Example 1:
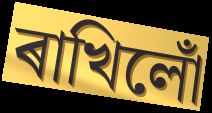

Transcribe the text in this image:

ৰাখিলোঁ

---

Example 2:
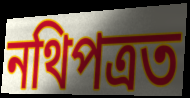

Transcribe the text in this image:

নথিপত্ৰত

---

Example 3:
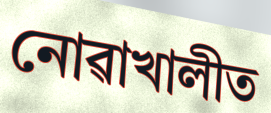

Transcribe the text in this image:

নোৱাখালীত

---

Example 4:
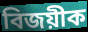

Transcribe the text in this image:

বিজয়ীক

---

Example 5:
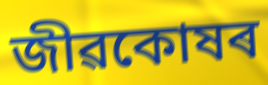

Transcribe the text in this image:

জীৱকোষৰ